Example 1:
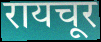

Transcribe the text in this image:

रायचूर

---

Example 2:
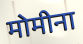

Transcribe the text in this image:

मोमीना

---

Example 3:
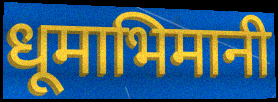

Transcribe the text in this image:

धूमाभिमानी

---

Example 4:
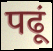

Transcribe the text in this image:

पढूं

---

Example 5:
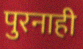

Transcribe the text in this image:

पुरनाही